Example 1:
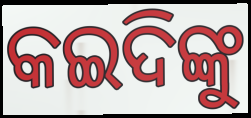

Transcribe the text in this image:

କଇଦିଙ୍କୁ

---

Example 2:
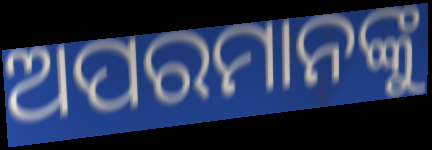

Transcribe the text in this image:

ଅପରମାନଙ୍କୁ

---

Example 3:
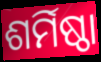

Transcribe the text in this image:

ଶର୍ମିଷ୍ଠା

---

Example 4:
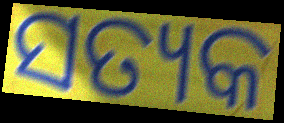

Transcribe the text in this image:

ସତ୍ୟକ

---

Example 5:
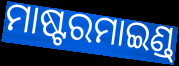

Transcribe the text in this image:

ମାଷ୍ଟରମାଇଣ୍ଡ୍